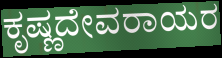
ಕೃಷ್ಣದೇವರಾಯರ